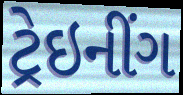
ટ્રેઇનીંગ